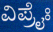
ವಿಪ್ರೈಃ